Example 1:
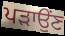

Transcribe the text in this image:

ਪੜਾਉਂਣ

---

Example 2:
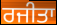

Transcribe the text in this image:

ਰਜੀਤਾ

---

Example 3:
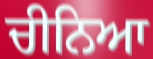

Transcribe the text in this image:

ਚੀਨਿਆ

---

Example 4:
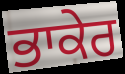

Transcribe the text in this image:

ਭਾਕੇਰ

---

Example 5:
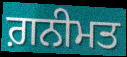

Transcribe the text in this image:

ਗ਼ਨੀਮਤ